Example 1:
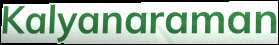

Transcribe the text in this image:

Kalyanaraman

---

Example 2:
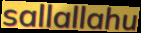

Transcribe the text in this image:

sallallahu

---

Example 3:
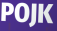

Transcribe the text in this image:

POJK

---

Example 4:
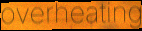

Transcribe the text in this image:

overheating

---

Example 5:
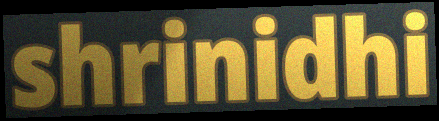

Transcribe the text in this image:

shrinidhi